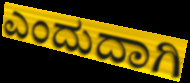
ಎಂದುದಾಗಿ